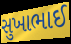
સુખાભાઈ